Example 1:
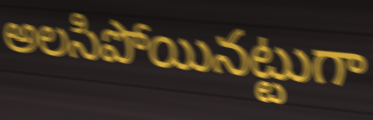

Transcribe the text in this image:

అలసిపోయినట్టుగా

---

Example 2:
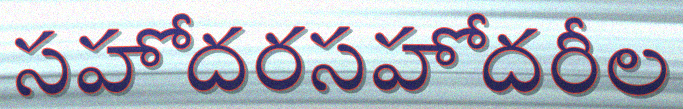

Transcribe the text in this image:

సహోదరసహోదరీల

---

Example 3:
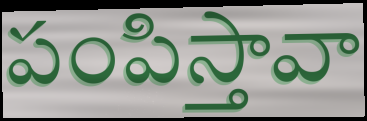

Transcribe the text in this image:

పంపిస్తావా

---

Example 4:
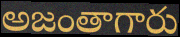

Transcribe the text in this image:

అజంతాగారు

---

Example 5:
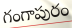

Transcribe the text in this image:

గంగాపురం